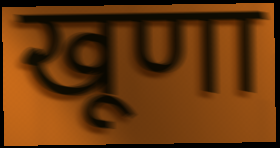
खूणा